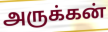
அருக்கன்